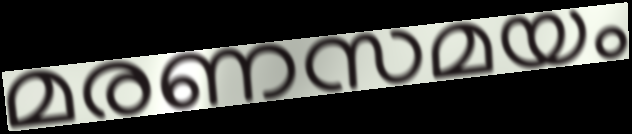
മരണസമയം